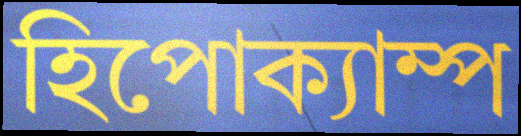
হিপোক্যাম্প